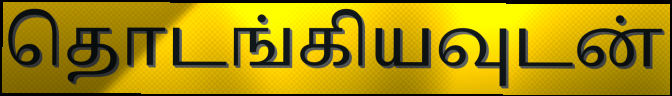
தொடங்கியவுடன்